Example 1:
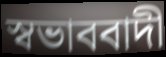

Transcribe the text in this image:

স্বভাববাদী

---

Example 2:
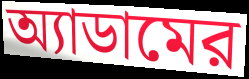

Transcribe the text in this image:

অ্যাডামের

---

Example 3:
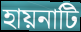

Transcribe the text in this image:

হায়নাটি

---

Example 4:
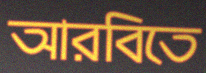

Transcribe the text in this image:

আরবিতে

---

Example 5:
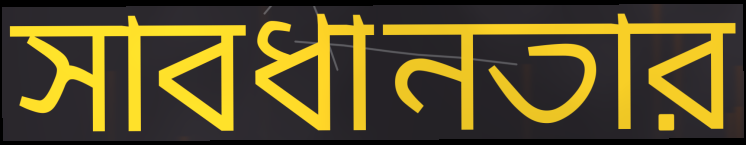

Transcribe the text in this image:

সাবধানতার